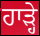
ਹਾੜ੍ਹੇ